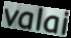
valai